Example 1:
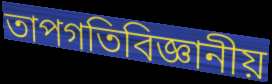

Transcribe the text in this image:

তাপগতিবিজ্ঞানীয়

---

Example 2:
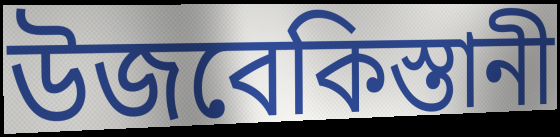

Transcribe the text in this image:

উজবেকিস্তানী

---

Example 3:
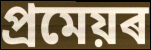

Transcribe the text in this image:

প্ৰমেয়ৰ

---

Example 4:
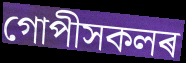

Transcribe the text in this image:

গোপীসকলৰ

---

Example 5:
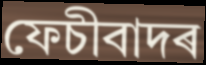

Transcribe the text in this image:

ফেচীবাদৰ